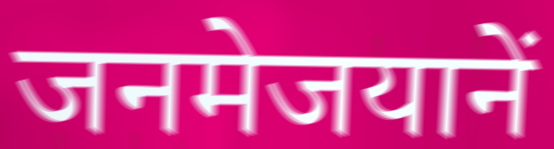
जनमेजयानें